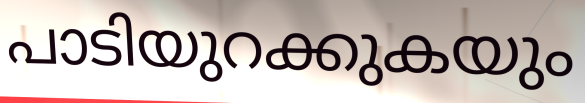
പാടിയുറക്കുകയും